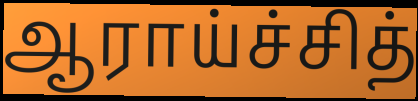
ஆராய்ச்சித்